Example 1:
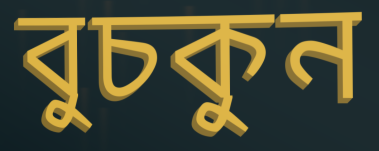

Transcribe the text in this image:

বুচকুন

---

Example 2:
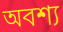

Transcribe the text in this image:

অবশ্য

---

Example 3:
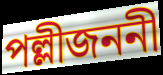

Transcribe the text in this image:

পল্লীজননী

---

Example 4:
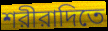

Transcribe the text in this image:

শরীরাদিতে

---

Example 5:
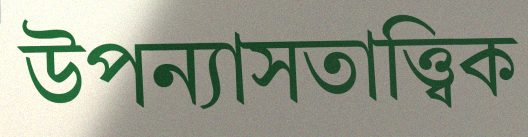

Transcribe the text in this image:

উপন্যাসতাত্ত্বিক